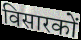
विसारकों